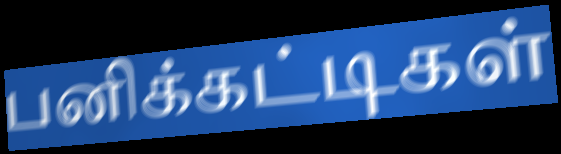
பனிக்கட்டிகள்